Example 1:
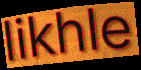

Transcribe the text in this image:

likhle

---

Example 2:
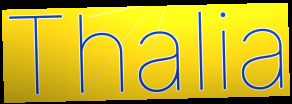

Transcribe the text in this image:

Thalia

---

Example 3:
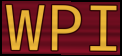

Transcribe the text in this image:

WPI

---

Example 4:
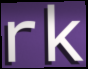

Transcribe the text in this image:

rk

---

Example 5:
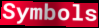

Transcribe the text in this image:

Symbols